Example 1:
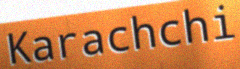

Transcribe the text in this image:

Karachchi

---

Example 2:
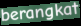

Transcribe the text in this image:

berangkat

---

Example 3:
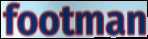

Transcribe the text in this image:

footman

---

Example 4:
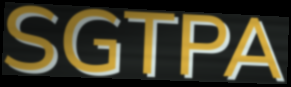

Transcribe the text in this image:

SGTPA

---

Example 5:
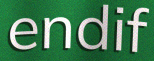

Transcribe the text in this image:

endif